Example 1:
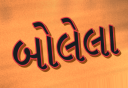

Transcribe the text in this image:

બોલેલા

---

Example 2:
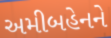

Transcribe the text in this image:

અમીબહેનને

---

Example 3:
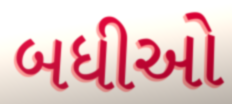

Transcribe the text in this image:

બધીઓ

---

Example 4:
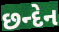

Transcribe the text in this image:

છન્દેન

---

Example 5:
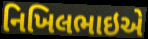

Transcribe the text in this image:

નિખિલભાઇએ